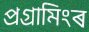
প্ৰগ্ৰামিংৰ